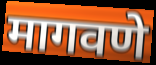
मागवणे